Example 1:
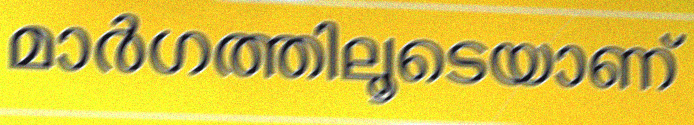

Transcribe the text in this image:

മാർഗത്തിലൂടെയാണ്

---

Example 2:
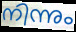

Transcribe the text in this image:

നിന്നും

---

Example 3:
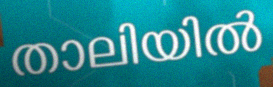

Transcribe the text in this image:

താലിയിൽ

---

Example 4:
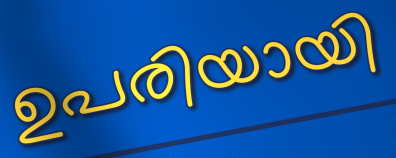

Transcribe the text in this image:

ഉപരിയായി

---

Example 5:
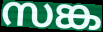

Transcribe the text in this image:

സങ്ക